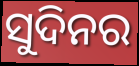
ସୁଦିନର